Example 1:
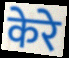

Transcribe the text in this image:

केरे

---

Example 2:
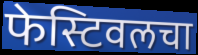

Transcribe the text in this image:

फेस्टिवलचा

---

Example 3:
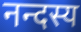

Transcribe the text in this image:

नन्दस्य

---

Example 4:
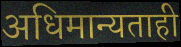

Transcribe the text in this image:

अधिमान्यताही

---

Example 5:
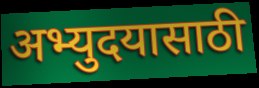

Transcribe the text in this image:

अभ्युदयासाठी